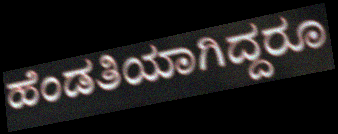
ಹೆಂಡತಿಯಾಗಿದ್ದರೂ